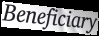
Beneficiary